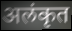
अलंकृत